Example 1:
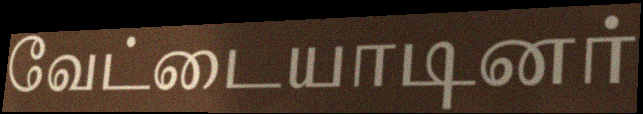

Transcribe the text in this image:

வேட்டையாடினர்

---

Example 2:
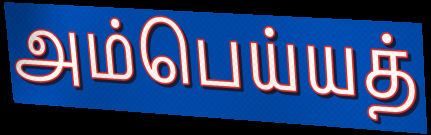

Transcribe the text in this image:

அம்பெய்யத்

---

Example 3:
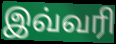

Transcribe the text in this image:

இவ்வரி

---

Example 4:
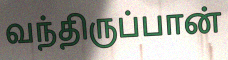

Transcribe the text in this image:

வந்திருப்பான்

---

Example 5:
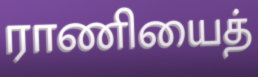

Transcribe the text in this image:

ராணியைத்